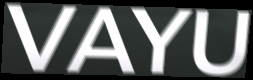
VAYU